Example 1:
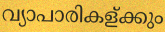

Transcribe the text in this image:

വ്യാപാരികള്ക്കും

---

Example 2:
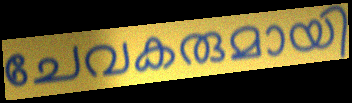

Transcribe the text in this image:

ചേവകരുമായി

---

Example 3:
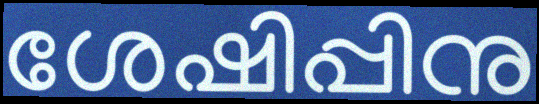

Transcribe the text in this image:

ശേഷിപ്പിനു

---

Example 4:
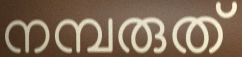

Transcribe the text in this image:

നമ്പരുത്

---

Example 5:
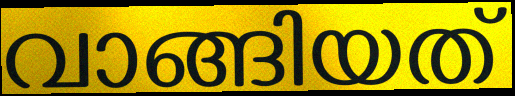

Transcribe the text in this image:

വാങ്ങിയത്